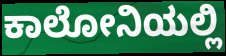
ಕಾಲೋನಿಯಲ್ಲಿ